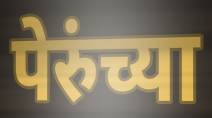
पेरुंच्या